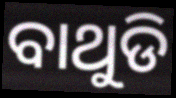
ବାଥୁଡି